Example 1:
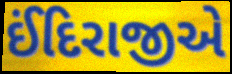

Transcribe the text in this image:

ઈંદિરાજીએ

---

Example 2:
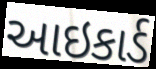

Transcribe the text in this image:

આઇકાર્ડ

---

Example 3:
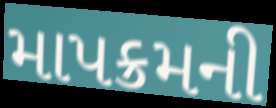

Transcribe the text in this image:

માપક્રમની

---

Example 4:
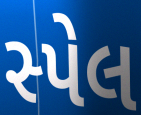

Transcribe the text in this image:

સ્પેલ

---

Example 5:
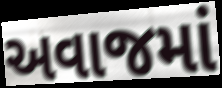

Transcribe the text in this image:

અવાજમાં